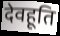
देवहूति